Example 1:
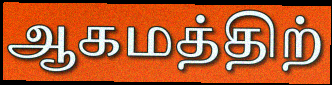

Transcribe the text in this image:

ஆகமத்திற்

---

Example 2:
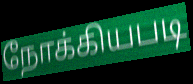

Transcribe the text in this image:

நோக்கியபடி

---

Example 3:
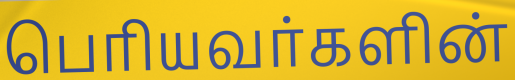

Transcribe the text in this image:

பெரியவர்களின்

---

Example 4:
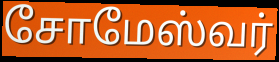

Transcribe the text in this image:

சோமேஸ்வர்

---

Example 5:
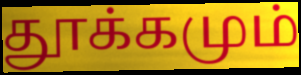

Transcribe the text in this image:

தூக்கமும்